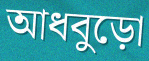
আধবুড়ো